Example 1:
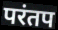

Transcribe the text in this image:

परंतप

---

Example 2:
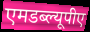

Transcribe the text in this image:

एमडब्ल्यूपीए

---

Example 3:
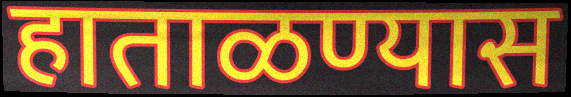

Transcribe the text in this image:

हाताळण्यास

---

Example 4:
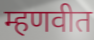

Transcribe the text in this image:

म्हणवीत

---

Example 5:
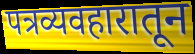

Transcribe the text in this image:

पत्रव्यवहारातून